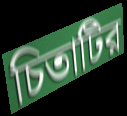
চিতাটির